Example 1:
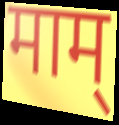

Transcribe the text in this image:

माम्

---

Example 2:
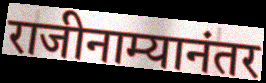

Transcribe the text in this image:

राजीनाम्यानंतर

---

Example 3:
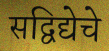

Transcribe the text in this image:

सद्विद्येचे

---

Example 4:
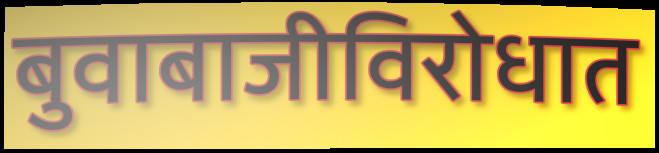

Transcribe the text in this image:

बुवाबाजीविरोधात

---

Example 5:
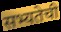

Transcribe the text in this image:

सभ्यतेची